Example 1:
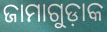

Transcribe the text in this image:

ଜାମାଗୁଡ଼ାକ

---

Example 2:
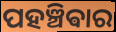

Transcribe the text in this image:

ପହଞ୍ଚିଵାର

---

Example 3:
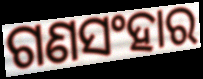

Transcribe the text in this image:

ଗଣସଂହାର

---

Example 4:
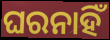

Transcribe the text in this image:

ଘରନାହିଁ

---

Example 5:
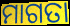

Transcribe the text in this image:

ମାଗତା